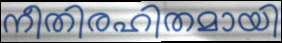
നീതിരഹിതമായി